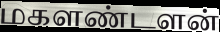
மகளண்டளன்